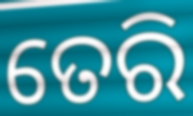
ତେରି